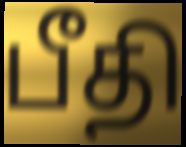
பீதி